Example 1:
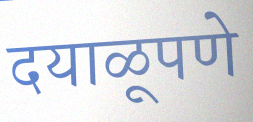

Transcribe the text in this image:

दयाळूपणे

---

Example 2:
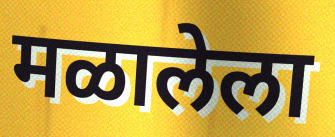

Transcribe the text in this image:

मळालेला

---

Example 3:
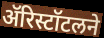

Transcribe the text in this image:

ॲरिस्टॉटलने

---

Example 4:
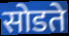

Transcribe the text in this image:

सोडते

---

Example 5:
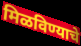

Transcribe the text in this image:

मिळविण्याचे